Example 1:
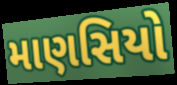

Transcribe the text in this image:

માણસિયો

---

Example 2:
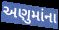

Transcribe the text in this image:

અણુમાંના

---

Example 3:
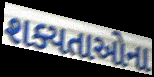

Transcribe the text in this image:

શક્યતાઓના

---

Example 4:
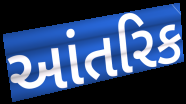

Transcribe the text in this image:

આંતરિક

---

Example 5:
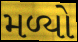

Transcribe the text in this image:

મળ્યો